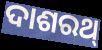
ଦାଶରଥ୍